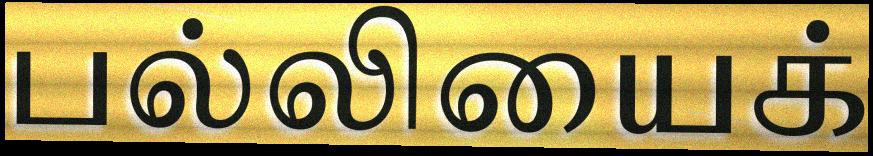
பல்லியைக்